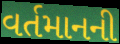
વર્તમાનની